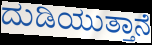
ದುಡಿಯುತ್ತಾನೆ